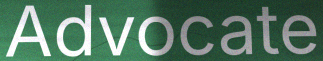
Advocate